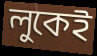
লুকেই